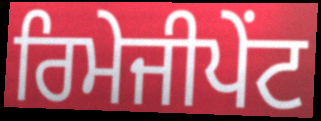
ਰਿਮੇਜੀਪੇਂਟ